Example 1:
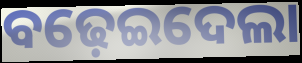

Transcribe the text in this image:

ବଢ଼େଇଦେଲା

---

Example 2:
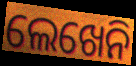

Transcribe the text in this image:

ଲେଖେନି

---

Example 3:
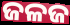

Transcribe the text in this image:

ଜଳଜ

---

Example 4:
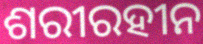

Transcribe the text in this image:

ଶରୀରହୀନ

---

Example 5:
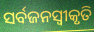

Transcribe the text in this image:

ସର୍ବଜନସ୍ୱୀକୃତି